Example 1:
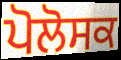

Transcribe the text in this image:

ਪੋਲੋਸਕ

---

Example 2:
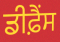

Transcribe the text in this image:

ਡੀਫ਼ੈਂਸ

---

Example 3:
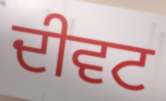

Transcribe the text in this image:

ਦੀਵਟ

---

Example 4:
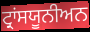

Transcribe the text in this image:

ਟ੍ਰਾਂਸਯੂਨੀਅਨ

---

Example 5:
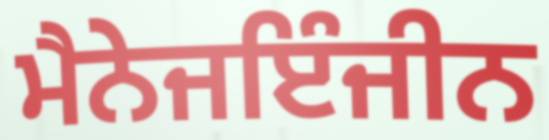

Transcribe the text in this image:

ਮੈਨੇਜਇੰਜੀਨ